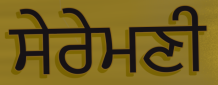
ਸੇਰੇਮਣੀ